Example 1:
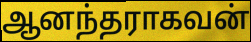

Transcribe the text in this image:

ஆனந்தராகவன்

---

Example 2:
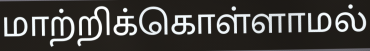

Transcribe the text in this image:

மாற்றிக்கொள்ளாமல்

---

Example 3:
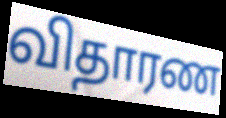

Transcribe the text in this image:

விதாரண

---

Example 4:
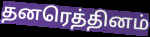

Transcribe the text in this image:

தனரெத்தினம்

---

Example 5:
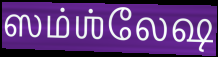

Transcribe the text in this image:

ஸம்ஶ்லேஷ